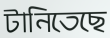
টানিতেছে